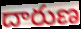
దారుణ